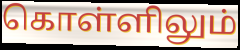
கொள்ளிலும்